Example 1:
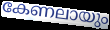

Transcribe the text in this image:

കേണലായും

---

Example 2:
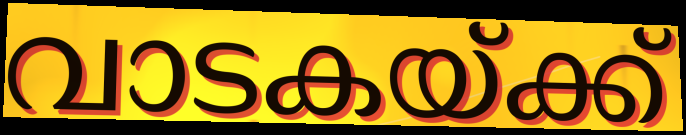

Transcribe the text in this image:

വാടകയ്ക്ക്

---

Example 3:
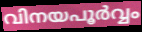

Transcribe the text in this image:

വിനയപൂർവ്വം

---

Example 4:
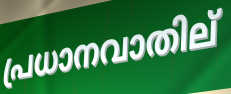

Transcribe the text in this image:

പ്രധാനവാതില്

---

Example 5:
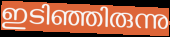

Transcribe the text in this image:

ഇടിഞ്ഞിരുന്നു